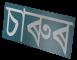
চাৰুৰ